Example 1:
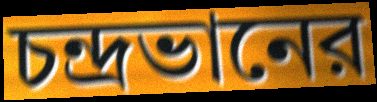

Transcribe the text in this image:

চন্দ্রভানের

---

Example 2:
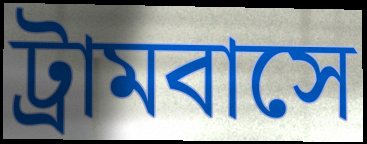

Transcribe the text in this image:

ট্রামবাসে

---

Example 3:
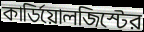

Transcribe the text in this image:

কার্ডিয়োলজিস্টের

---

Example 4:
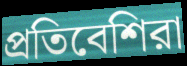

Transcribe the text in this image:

প্রতিবেশিরা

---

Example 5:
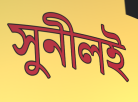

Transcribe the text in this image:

সুনীলই